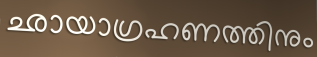
ഛായാഗ്രഹണത്തിനും